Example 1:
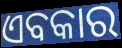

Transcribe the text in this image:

ଏବକାର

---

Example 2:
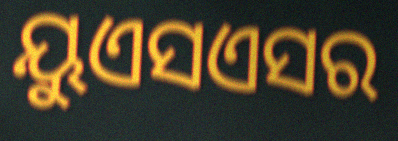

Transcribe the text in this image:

ୟୁଏସଏସର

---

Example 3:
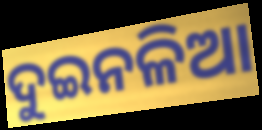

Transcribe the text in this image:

ଦୁଇନଳିଆ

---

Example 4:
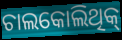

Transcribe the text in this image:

ଚାଲକୋଲିଥିକ୍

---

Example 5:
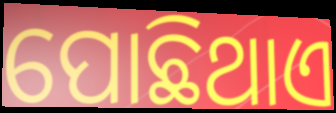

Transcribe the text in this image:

ପୋଛିଥାଏ